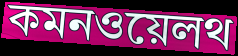
কমনওয়েলথ